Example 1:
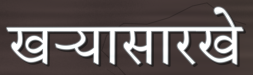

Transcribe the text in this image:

खऱ्यासारखे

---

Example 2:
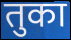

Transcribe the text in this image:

तुका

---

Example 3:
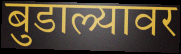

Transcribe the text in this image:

बुडाल्यावर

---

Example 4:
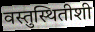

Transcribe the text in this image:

वस्तुस्थितीशी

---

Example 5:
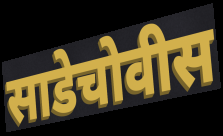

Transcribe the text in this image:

साडेचोवीस